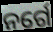
ନର୍ଗେ